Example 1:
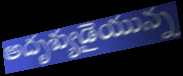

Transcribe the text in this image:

అదృశ్యుడైయున్న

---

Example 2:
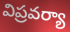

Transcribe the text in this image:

విప్రవర్యా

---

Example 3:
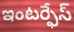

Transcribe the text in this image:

ఇంటర్ఫేస్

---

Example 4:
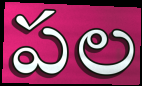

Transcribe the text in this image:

పల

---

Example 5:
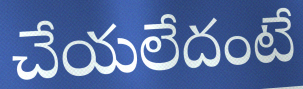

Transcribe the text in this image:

చేయలేదంటే